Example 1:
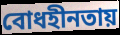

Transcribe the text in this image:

বোধহীনতায়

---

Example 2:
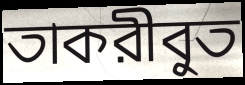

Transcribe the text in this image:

তাকরীবুত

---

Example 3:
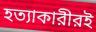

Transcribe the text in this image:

হত্যাকারীরই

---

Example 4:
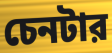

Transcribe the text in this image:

চেনটার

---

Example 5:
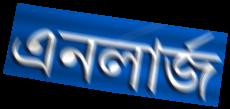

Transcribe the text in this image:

এনলার্জ